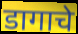
डागाचे